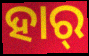
ହାର୍